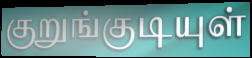
குறுங்குடியுள்